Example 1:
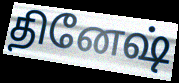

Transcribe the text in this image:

தினேஷ்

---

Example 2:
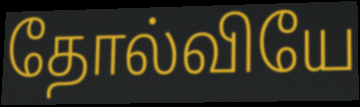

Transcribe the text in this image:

தோல்வியே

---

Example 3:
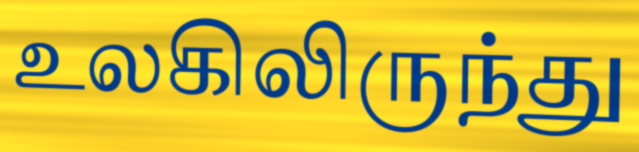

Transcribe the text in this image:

உலகிலிருந்து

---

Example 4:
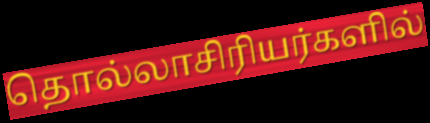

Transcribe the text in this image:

தொல்லாசிரியர்களில்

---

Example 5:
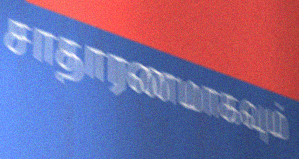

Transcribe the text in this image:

சாதாரணமாகவும்